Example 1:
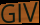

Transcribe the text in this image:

GIV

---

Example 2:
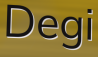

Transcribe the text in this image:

Degi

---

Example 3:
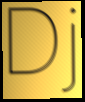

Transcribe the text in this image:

Dj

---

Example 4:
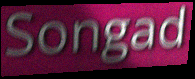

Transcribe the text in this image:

Songad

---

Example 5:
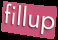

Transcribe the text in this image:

fillup